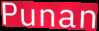
Punan